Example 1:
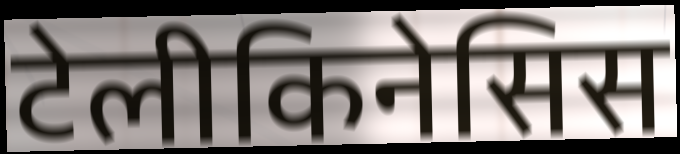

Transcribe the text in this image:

टेलीकिनेसिस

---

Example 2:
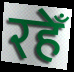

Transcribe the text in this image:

रहेँ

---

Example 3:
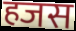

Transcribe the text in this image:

हजस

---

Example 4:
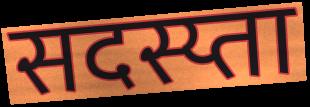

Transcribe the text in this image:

सदस्य्ता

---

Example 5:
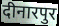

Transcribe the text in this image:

दीनारपुर